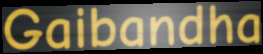
Gaibandha